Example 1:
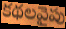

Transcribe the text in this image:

కథలవైపు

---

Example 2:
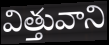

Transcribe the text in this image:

విత్తువాని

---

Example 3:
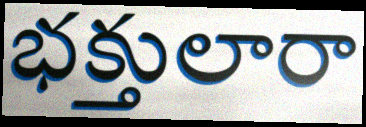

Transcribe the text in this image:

భక్తులారా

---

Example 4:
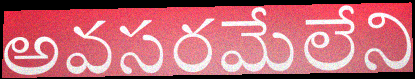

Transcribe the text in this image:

అవసరమేలేని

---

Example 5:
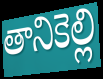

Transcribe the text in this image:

తానికెల్లి